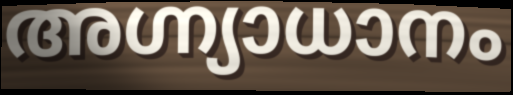
അഗ്ന്യാധാനം